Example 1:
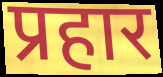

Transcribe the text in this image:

प्रहार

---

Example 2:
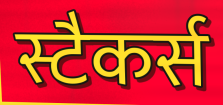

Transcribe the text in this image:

स्टैकर्स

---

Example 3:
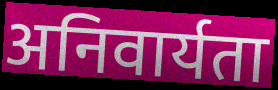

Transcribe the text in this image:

अनिवार्यता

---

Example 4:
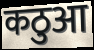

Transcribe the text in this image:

कठुआ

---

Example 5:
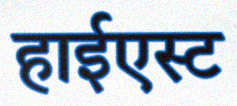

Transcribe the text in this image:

हाईएस्ट